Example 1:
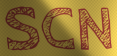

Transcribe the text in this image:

SCN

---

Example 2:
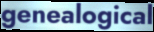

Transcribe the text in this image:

genealogical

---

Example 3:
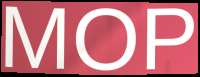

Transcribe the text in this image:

MOP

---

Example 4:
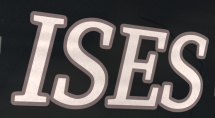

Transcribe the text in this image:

ISES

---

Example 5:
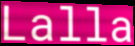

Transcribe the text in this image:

Lalla